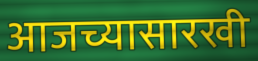
आजच्यासारखी